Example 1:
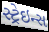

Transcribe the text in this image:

સ્ટ્રેઇન્સ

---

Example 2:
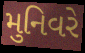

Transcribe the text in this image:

મુનિવરે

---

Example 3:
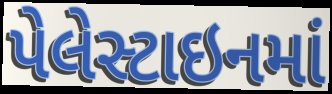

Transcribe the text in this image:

પેલેસ્ટાઇનમાં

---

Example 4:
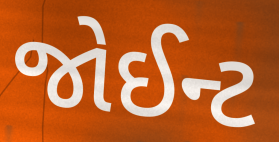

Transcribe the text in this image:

જોઈન્ટ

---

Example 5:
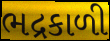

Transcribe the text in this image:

ભદ્રકાળી